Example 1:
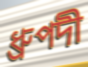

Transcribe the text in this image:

ধ্রুপদী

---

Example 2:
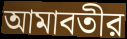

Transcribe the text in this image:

আমাবতীর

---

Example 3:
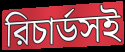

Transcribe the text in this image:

রিচার্ডসই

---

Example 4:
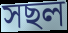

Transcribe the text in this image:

সছল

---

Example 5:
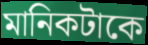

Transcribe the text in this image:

মানিকটাকে